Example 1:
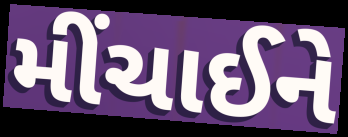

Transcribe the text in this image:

મીંચાઈને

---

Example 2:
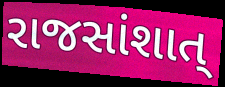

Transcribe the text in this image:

રાજસાંશાત્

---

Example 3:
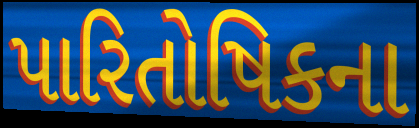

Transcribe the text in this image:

પારિતોષિકના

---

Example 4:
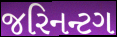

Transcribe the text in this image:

જરિનન્ટગ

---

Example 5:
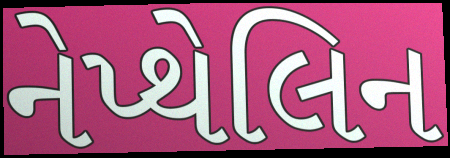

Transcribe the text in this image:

નેપ્થેલિન